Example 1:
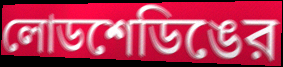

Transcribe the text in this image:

লোডশেডিঙের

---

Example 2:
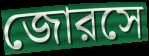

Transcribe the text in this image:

জোরসে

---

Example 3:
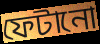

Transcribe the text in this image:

ফেটানো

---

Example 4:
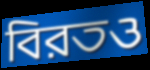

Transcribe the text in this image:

বিরতও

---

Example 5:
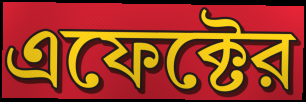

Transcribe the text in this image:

এফেক্টের